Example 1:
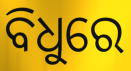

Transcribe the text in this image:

ବିଧୁରେ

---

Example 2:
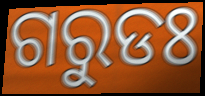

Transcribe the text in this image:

ଗରୁଡଃ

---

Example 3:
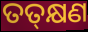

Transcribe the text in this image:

ତତ୍‌କ୍ଷଣ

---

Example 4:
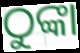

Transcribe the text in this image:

ଠୁଙ୍କା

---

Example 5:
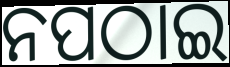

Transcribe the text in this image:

ନପଠାଇ